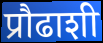
प्रौढाशी